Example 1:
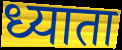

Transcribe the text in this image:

ध्याता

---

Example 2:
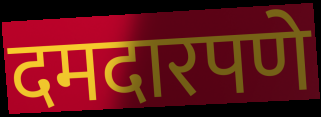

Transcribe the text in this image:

दमदारपणे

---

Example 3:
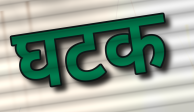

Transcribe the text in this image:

घटक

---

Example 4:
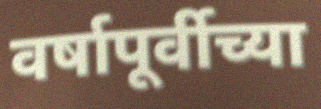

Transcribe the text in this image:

वर्षापूर्वीच्या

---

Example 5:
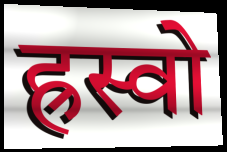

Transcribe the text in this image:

ह्रस्वो